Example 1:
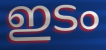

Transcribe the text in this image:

ഇടം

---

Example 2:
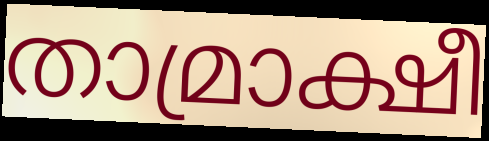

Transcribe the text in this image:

താമ്രാക്ഷീ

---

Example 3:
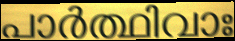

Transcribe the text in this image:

പാർത്ഥിവാഃ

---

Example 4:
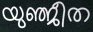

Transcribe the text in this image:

യുഞ്ജീത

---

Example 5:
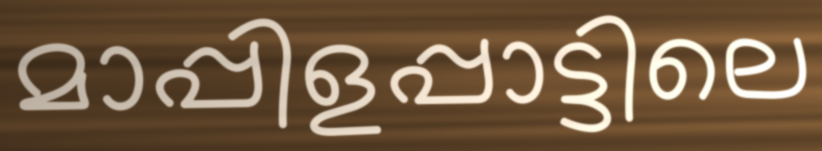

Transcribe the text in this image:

മാപ്പിളപ്പാട്ടിലെ